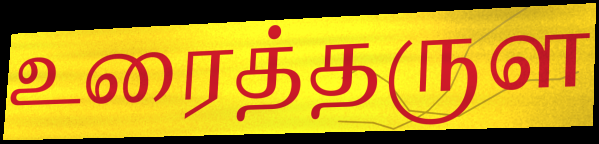
உரைத்தருள